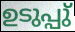
ഉടുപ്പു്